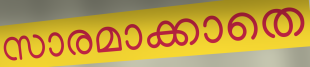
സാരമാക്കാതെ